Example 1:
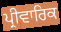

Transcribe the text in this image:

ਪ੍ਰੀਵਾਰਿਕ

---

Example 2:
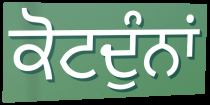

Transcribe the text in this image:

ਕੋਟਦੁੰਨਾਂ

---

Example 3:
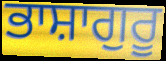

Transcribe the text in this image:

ਭਾਸ਼ਾਗੁਰੂ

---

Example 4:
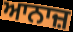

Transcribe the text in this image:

ਆਨਾਜ਼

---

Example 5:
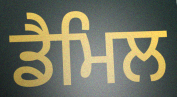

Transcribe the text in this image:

ਡੈਮਿਲ